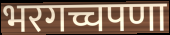
भरगच्चपणा